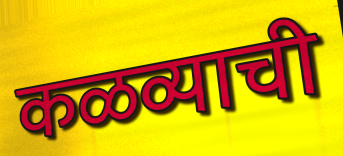
कळव्याची